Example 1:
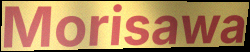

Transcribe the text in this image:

Morisawa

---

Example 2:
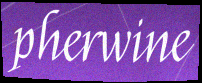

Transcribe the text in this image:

pherwine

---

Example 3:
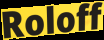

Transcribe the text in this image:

Roloff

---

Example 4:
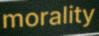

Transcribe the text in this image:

morality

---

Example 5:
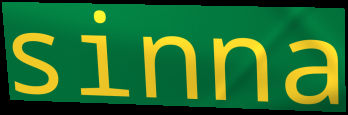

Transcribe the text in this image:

sinna